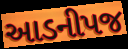
આડનીપજ